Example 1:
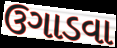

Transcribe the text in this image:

ઉગાડવા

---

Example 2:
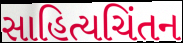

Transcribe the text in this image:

સાહિત્યચિંતન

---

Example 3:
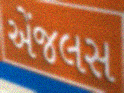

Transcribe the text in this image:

એંજલસ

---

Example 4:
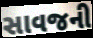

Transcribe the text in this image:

સાવજની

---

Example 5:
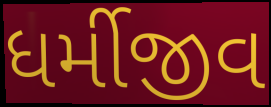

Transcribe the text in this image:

ધર્મીજીવ